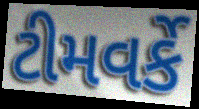
ટીમવર્કે